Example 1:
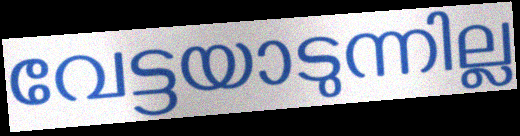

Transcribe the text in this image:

വേട്ടയാടുന്നില്ല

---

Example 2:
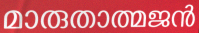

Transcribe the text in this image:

മാരുതാത്മജൻ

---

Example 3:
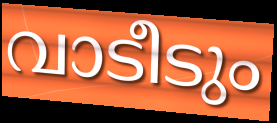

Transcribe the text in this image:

വാടീടും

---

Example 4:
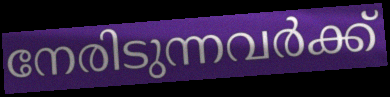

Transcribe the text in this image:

നേരിടുന്നവർക്ക്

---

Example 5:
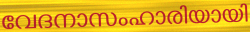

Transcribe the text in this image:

വേദനാസംഹാരിയായി